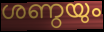
ശണ്ഠയും